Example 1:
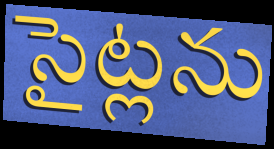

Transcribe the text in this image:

సైట్లను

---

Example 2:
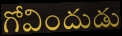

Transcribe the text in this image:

గోవిందుడు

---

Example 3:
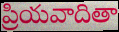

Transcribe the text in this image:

ప్రియవాదితా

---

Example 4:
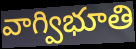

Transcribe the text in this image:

వాగ్విభూతి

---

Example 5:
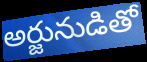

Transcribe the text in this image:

అర్జునుడితో